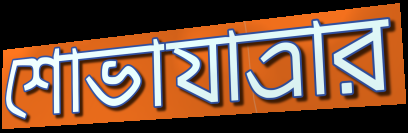
শোভাযাত্রার